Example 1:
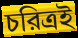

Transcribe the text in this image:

চরিত্রই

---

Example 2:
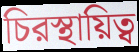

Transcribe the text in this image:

চিরস্থায়িত্ব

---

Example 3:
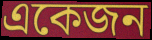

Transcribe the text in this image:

একেজন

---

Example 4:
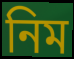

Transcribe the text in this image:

নিম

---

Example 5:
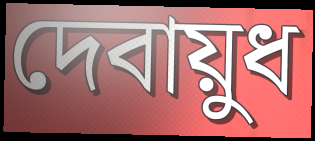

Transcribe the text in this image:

দেবায়ুধ